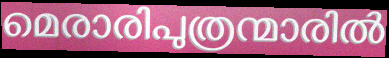
മെരാരിപുത്രന്മാരിൽ